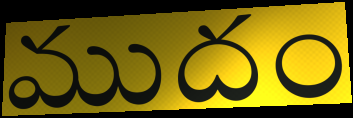
ముదం